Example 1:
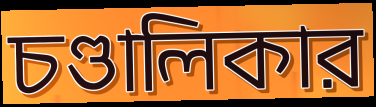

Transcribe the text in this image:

চণ্ডালিকার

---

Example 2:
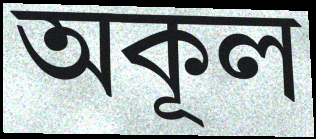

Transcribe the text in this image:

অকূল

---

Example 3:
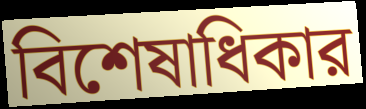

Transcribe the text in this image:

বিশেষাধিকার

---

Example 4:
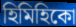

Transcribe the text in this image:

হিমিহিকো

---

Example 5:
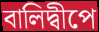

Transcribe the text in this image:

বালিদ্বীপে